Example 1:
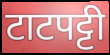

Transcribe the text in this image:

टाटपट्टी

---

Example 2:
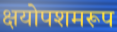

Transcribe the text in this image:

क्षयोपशमरूप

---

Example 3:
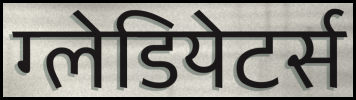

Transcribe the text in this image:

ग्लेडियेटर्स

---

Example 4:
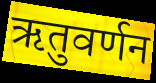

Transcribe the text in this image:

ऋतुवर्णन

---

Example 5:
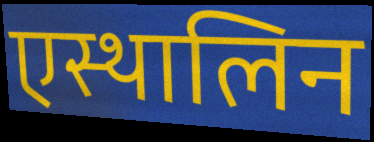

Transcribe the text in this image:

एस्थालिन